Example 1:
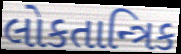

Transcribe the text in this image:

લોકતાન્ત્રિક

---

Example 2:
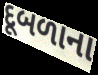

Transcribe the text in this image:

દૂબળાના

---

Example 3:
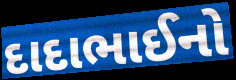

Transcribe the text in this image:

દાદાભાઈનો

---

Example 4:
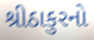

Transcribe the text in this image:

શ્રીઠાકુરનો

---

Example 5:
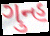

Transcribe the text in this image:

ગુન્હ